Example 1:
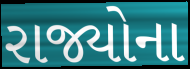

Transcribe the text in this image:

રાજ્યોના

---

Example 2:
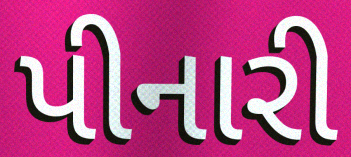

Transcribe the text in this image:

પીનારી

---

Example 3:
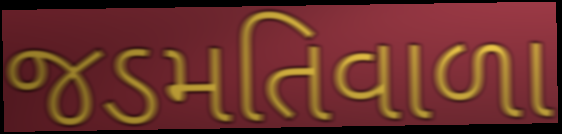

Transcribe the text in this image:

જડમતિવાળા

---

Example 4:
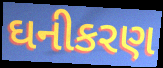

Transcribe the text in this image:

ઘનીકરણ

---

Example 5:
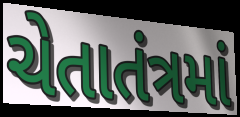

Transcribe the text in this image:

ચેતાતંત્રમાં